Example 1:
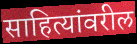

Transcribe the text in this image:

साहित्यांवरील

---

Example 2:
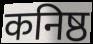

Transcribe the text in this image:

कनिष्ठ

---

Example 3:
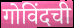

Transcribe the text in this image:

गोविंदची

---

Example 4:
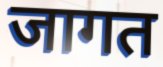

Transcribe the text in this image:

जागत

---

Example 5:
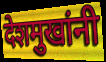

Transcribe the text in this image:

देशमुखांनी